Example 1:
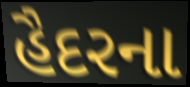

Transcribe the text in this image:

હૈદરના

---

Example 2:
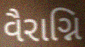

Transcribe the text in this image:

વૈરાગ્નિ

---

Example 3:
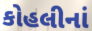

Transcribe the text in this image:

કોહલીનાં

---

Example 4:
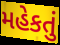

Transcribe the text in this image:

મહેકતું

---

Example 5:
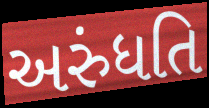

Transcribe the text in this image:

અરુંધતિ